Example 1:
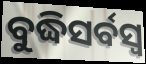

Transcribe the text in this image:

ବୁଦ୍ଧିସର୍ବସ୍ୱ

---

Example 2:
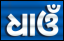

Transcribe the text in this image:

ଧାଓଁ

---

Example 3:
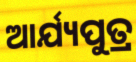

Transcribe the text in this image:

ଆର୍ଯ୍ୟପୁତ୍ର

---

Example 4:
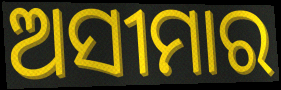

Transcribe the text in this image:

ଅସୀମାର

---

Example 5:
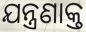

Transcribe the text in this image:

ଯନ୍ତ୍ରଣାକ୍ତ